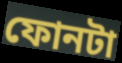
ফোনটা